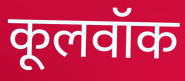
कूलवॉक